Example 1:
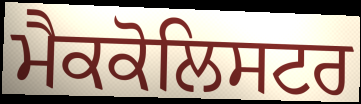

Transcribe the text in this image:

ਮੈਕਕੋਲਿਸਟਰ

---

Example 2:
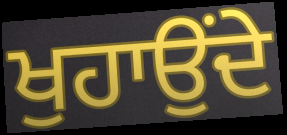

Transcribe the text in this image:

ਖੁਹਾਉਂਦੇ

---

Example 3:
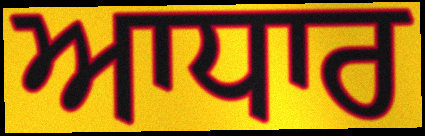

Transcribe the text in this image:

ਆਧਾਰ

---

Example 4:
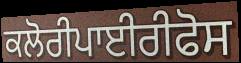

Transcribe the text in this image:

ਕਲੋਰੀਪਾਈਰੀਫੋਸ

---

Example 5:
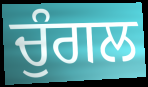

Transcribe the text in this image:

ਚੁੰਗਲ